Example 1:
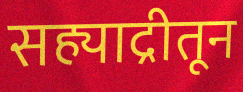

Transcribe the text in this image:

सह्याद्रीतून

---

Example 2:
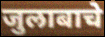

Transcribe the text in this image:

जुलाबाचे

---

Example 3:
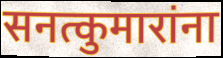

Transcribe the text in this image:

सनत्कुमारांना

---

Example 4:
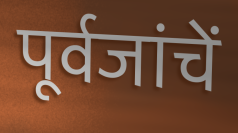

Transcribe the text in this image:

पूर्वजांचें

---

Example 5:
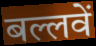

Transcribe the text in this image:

बल्लवें